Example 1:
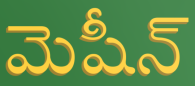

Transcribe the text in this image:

మెషీన్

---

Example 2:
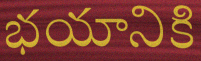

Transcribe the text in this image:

భయానికి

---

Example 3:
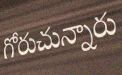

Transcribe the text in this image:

గోరుచున్నారు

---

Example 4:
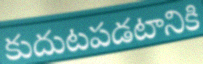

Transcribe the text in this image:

కుదుటపడటానికి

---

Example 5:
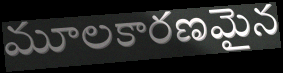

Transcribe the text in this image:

మూలకారణమైన